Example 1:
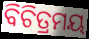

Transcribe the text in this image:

ବିଚିତ୍ରମୟ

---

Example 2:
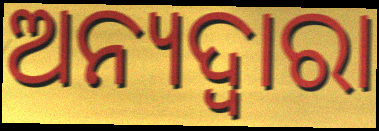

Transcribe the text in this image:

ଅନ୍ୟଦ୍ଵାରା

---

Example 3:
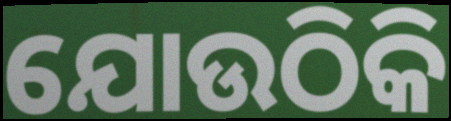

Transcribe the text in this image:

ଯୋଉଠିକି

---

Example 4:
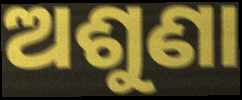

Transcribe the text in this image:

ଅଶୁଣା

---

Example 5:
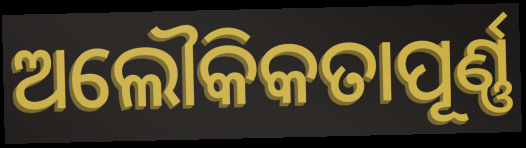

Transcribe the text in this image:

ଅଲୌକିକତାପୂର୍ଣ୍ଣ